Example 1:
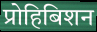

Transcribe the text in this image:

प्रोहिबिशन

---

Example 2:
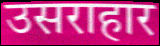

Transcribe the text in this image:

उसराहार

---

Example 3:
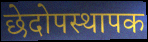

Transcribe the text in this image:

छेदोपस्थापक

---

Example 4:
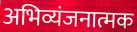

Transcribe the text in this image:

अभिव्यंजनात्मक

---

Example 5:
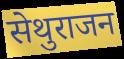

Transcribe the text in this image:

सेथुराजन